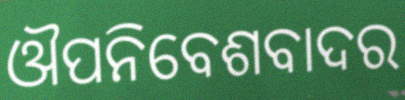
ଔପନିବେଶବାଦର